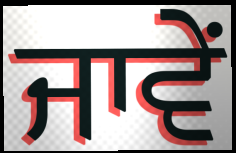
ਜਾਵੇਂ